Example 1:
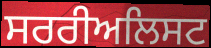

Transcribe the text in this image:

ਸਰਰੀਅਲਿਸਟ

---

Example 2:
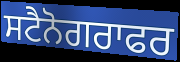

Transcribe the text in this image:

ਸਟੈਨੋਗਰਾਫਰ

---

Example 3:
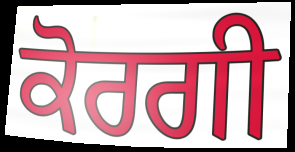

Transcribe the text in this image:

ਕੋਰਗੀ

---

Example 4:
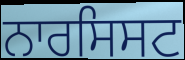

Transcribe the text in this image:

ਨਾਰਸਿਸਟ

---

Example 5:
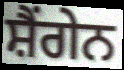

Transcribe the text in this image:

ਸ਼ੈਂਗੇਨ